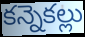
కన్నెకల్లు